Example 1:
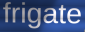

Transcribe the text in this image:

frigate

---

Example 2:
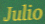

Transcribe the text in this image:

Julio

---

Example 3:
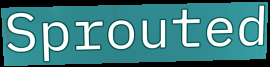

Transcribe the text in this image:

Sprouted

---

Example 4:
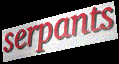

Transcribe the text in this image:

serpants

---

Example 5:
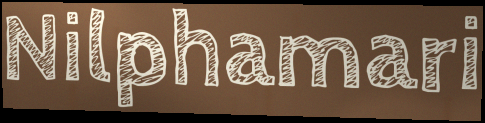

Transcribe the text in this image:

Nilphamari